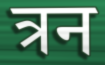
त्रन